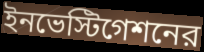
ইনভেস্টিগেশনের